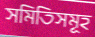
সমিতিসমূহ